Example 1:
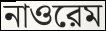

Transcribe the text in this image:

নাওরেম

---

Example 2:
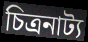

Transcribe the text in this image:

চিত্রনাট্য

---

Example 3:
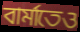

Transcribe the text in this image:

বার্মাতেও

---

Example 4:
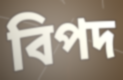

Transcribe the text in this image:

বিপদ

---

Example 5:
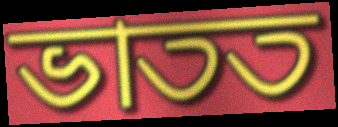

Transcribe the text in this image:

ভাতত